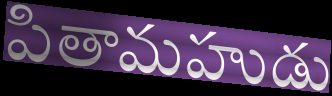
పితామహుడు